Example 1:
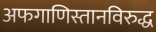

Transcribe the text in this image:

अफगाणिस्तानविरुद्ध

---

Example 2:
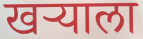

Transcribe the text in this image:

खर्‍याला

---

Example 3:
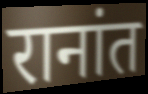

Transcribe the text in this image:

रानांत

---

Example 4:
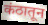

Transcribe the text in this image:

कंठातून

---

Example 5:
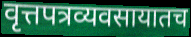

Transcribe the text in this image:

वृत्तपत्रव्यवसायातच